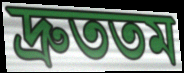
দ্রুততম